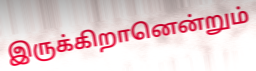
இருக்கிறானென்றும்